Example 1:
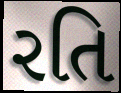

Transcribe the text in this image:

રતિ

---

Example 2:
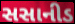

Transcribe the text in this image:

સસાનીડ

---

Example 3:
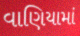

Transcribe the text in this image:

વાણિયામાં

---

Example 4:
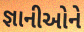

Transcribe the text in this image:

જ્ઞાનીઓને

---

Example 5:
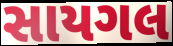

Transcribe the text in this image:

સાયગલ